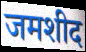
जमशीद